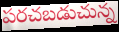
పరచబడుచున్న